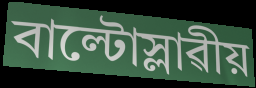
বাল্টোস্লাৱীয়